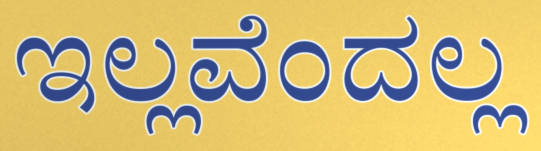
ಇಲ್ಲವೆಂದಲ್ಲ